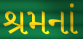
શ્રમનાં